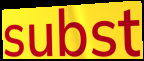
subst